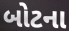
બોટના